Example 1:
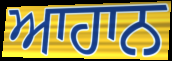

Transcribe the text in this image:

ਆਹਾਨ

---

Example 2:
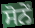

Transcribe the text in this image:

ਸੋਨੇਂ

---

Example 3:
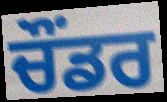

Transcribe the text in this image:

ਚੌਂਡਰ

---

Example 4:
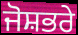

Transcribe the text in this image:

ਜੋਸ਼ਭਰੇ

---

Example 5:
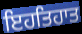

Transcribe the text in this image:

ਇਹਤਿਹਾਤ